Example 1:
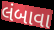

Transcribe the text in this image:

લંબાવા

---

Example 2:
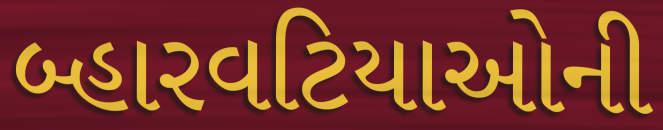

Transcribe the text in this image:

બ્હારવટિયાઓની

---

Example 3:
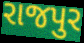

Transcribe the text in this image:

રાજપુર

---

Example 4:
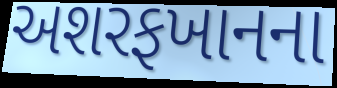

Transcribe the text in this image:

અશરફખાનના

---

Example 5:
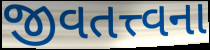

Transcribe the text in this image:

જીવતત્ત્વના